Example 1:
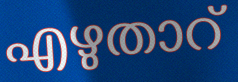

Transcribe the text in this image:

എഴുതാറ്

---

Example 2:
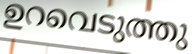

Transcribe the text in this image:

ഉറവെടുത്തു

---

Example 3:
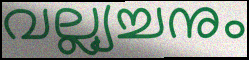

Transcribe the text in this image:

വല്ല്യച്ചനും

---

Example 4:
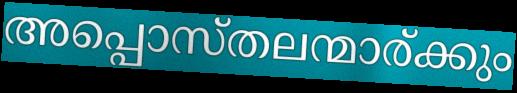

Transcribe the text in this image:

അപ്പൊസ്തലന്മാര്ക്കും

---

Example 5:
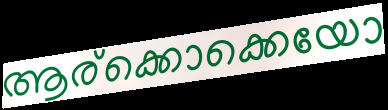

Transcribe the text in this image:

ആര്ക്കൊക്കെയോ